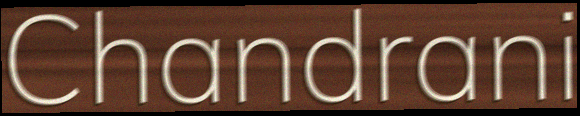
Chandrani